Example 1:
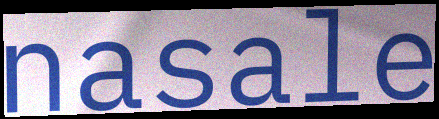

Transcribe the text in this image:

nasale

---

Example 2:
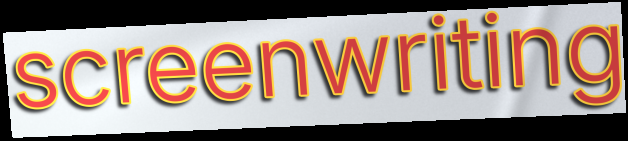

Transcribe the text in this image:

screenwriting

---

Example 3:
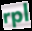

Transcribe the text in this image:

rpl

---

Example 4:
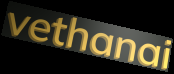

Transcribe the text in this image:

vethanai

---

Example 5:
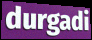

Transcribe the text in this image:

durgadi